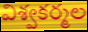
విశ్వకర్మల